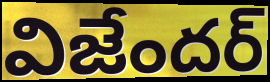
విజేందర్